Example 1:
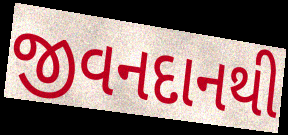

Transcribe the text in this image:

જીવનદાનથી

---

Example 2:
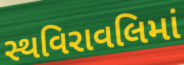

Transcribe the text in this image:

સ્થવિરાવલિમાં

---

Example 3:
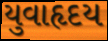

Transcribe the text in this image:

યુવાહૃદય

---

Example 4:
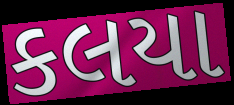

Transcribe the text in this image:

કલયા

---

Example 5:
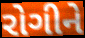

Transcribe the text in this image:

રોગીને